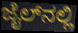
ಜೈಲ್‌ನಲ್ಲಿ